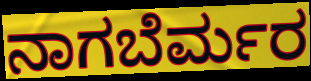
ನಾಗಬೆರ್ಮರ